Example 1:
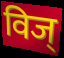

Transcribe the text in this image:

विज्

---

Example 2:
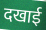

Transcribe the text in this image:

दखाई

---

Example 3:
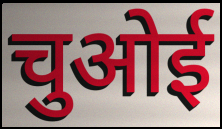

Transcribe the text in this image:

चुओई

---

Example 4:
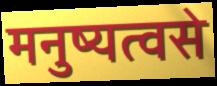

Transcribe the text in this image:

मनुष्यत्वसे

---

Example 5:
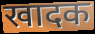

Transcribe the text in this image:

खादक